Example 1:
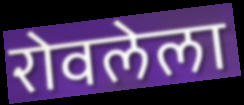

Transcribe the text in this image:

रोवलेला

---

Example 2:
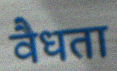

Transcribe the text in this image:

वैधता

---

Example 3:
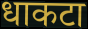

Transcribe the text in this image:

धाकटा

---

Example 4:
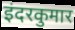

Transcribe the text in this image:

इंदरकुमार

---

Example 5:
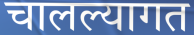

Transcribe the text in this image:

चालल्यागत